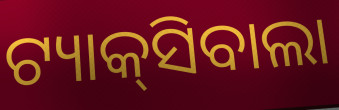
ଟ୍ୟାକ୍‌ସିବାଲା